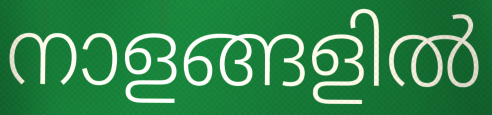
നാളങ്ങളിൽ